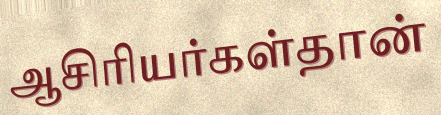
ஆசிரியர்கள்தான்